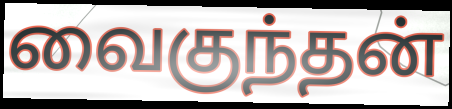
வைகுந்தன்